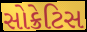
સોક્રેટિસ